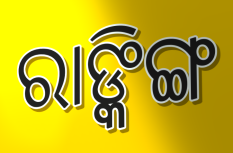
ରାଙ୍କିଙ୍ଗ